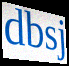
dbsj